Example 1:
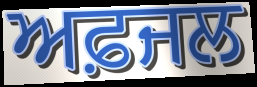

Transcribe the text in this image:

ਅਫ਼ਜਲ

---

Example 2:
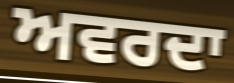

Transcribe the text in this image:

ਅਵਰਦਾ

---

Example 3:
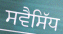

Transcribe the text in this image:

ਸਵੈਸਿੱਧ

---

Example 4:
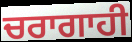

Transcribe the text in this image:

ਚਰਾਗਾਹੀ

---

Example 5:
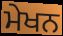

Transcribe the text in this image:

ਮੇਖਨ